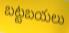
బట్టబయలు